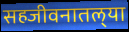
सहजीवनातल्या